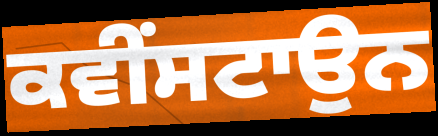
ਕਵੀਂਸਟਾਉਨ